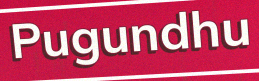
Pugundhu